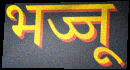
भज्जू